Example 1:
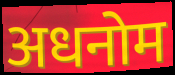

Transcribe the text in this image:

अधनोम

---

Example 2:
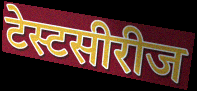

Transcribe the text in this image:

टेस्टसीरीज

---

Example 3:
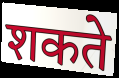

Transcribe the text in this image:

शकते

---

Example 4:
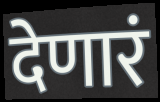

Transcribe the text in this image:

देणारं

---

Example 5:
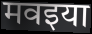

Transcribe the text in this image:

मवइया